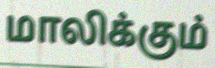
மாலிக்கும்